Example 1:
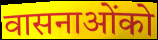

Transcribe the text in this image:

वासनाओंको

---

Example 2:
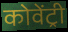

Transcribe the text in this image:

कोवेंट्री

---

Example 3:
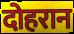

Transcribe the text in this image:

दोहरान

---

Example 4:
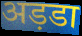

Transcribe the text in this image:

अड़डा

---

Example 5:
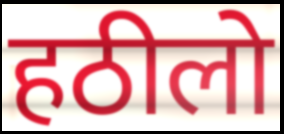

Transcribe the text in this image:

हठीलो